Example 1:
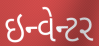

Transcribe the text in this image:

ઇન્વેન્ટર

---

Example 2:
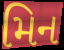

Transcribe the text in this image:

મિન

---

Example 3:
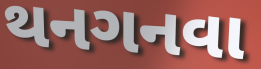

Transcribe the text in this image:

થનગનવા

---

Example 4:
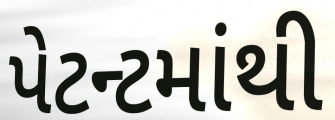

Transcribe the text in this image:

પેટન્ટમાંથી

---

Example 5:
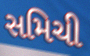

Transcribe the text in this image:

સમિચી